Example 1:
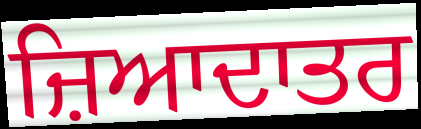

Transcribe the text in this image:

ਜ਼ਿਆਦਾਤਰ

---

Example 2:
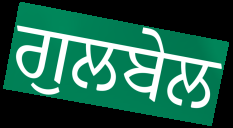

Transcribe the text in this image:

ਗੁਲਬੇਲ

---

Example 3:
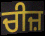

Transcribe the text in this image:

ਚੀਜ਼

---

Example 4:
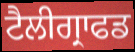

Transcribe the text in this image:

ਟੈਲੀਗ੍ਰਾਫਡ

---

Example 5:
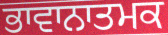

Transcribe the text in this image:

ਭਾਵਾਨਾਤਮਕ